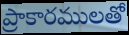
ప్రాకారములతో